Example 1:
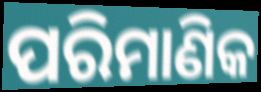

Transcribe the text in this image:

ପରିମାଣିକ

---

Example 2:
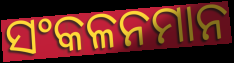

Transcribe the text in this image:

ସଂକଳନମାନ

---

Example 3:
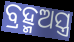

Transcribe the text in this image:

ବ୍ରହ୍ମଅସ୍ତ୍ର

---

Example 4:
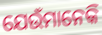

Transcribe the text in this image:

ଯେଉଁମାନେକି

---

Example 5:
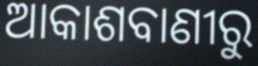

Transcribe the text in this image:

ଆକାଶବାଣୀରୁ